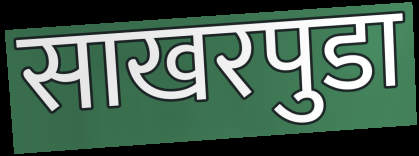
साखरपुडा